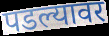
पडल्यावर